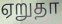
ஏறுதா